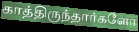
காத்திருந்தார்களோ